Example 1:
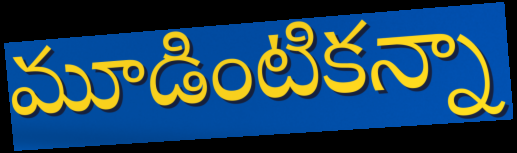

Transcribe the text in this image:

మూడింటికన్నా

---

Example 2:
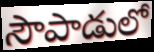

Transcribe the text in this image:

సౌపాడులో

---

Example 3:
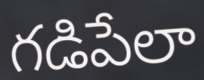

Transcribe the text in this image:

గడిపేలా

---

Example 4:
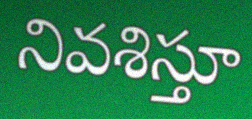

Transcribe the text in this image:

నివశిస్తూ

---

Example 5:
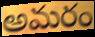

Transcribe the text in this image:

అమరం